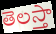
తెలస్తా